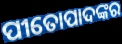
ପୀତୋପାଦଙ୍କର